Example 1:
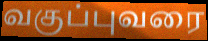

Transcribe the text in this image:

வகுப்புவரை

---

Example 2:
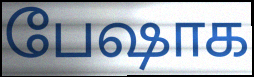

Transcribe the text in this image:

பேஷாக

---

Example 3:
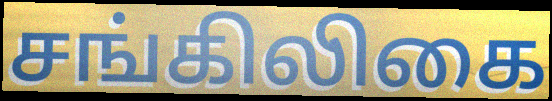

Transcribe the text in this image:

சங்கிலிகை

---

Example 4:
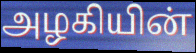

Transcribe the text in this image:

அழகியின்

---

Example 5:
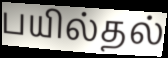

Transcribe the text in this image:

பயில்தல்